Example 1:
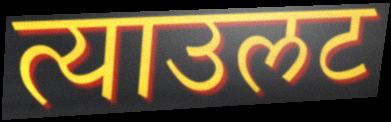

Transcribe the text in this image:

त्याउलट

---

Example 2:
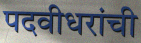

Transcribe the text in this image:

पदवीधरांची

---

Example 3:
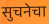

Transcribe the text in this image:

सुचनेचा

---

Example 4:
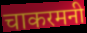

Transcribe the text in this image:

चाकरमनी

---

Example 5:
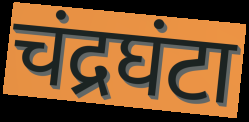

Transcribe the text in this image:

चंद्रघंटा